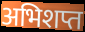
अभिशप्त